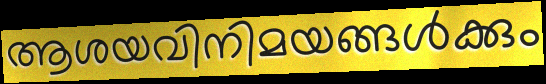
ആശയവിനിമയങ്ങൾക്കും